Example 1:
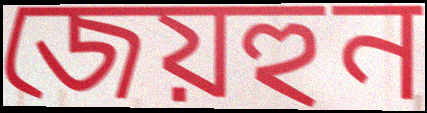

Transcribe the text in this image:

জেয়হুন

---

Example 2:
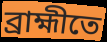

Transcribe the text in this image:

ব্রাহ্মীতে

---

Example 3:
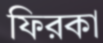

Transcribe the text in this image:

ফিরকা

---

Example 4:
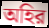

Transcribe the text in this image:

অহির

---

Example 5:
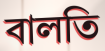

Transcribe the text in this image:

বালতি